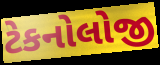
ટેકનોલોજી